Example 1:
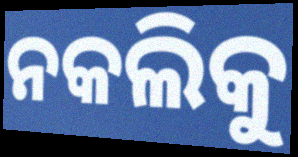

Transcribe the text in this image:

ନକଲିକୁ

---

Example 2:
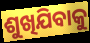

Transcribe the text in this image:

ଶୁଖିଯିବାକୁ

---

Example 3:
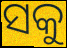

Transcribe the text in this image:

ସକୁ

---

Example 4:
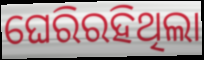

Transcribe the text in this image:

ଘେରିରହିଥିଲା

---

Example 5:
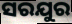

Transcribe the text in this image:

ସରଯୁର